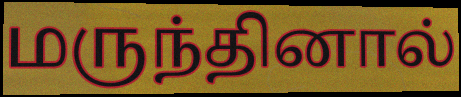
மருந்தினால்